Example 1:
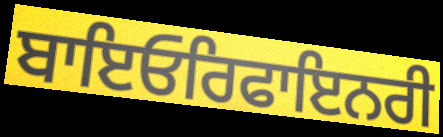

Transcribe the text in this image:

ਬਾਇਓਰਿਫਾਇਨਰੀ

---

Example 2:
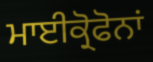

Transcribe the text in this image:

ਮਾਈਕ੍ਰੋਫੋਨਾਂ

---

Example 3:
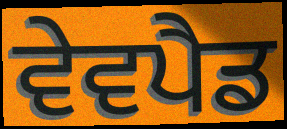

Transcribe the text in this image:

ਵੇਵਪੈਡ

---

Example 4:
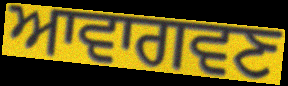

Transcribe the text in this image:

ਆਵਾਗਵਣ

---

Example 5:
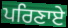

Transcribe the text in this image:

ਪਰਿਣਾਏ